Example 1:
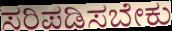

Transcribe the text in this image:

ಸರಿಪಡಿಸಬೇಕು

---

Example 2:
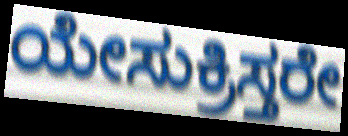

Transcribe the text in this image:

ಯೇಸುಕ್ರಿಸ್ತರೇ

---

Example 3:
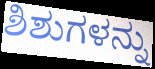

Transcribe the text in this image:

ಶಿಶುಗಳನ್ನು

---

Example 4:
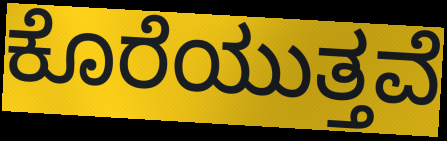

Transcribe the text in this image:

ಕೊರೆಯುತ್ತವೆ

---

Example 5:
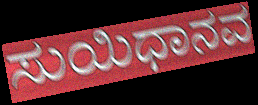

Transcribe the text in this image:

ಸುಯಿಧಾನವ